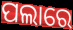
ପଲାରେ